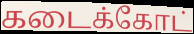
கடைக்கோட்